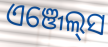
ଏଞ୍ଜେଲ୍‍ସ